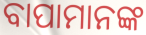
ବାପାମାନଙ୍କ